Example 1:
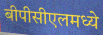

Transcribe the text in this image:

बीपीसीएलमध्ये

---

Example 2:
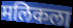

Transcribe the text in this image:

मलिकला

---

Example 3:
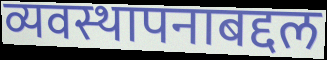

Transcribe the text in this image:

व्यवस्थापनाबद्दल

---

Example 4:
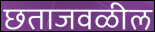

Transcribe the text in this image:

छताजवळील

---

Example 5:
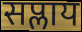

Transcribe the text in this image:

सप्लाय